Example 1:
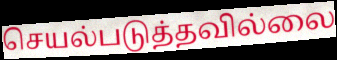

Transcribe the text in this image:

செயல்படுத்தவில்லை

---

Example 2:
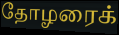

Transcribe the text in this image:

தோழரைக்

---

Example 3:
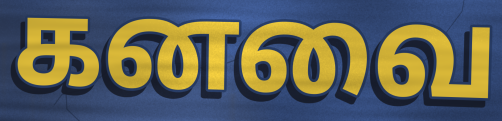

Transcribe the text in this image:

கனவை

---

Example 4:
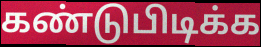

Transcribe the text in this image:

கண்டுபிடிக்க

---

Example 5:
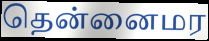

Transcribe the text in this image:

தென்னைமர